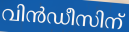
വിൻഡീസിന്